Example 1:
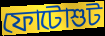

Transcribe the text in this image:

ফোটোশুট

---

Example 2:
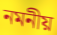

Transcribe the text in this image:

নমনীয়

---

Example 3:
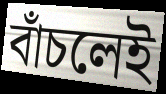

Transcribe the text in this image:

বাঁচলেই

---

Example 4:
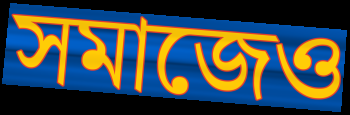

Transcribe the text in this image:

সমাজেও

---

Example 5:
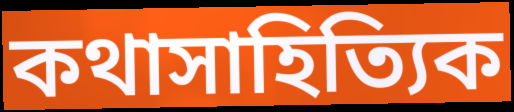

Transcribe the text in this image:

কথাসাহিত্যিক